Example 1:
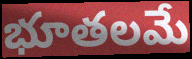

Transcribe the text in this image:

భూతలమే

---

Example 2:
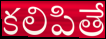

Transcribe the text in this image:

కలిపితే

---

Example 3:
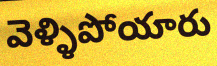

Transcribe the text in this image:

వెళ్ళిపోయారు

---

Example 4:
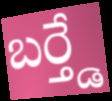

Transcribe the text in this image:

బర్త్డే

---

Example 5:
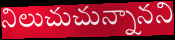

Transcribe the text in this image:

నిలుచుచున్నానని